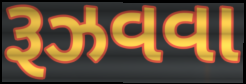
રૂઝવવા